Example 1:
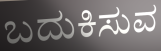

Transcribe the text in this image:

ಬದುಕಿಸುವ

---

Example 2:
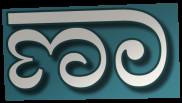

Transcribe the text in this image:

ಣಾ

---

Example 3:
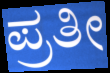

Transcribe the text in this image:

ಪ್ರತೀ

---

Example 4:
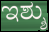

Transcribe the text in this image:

ಇಶ್ಶು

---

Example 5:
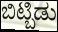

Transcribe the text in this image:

ಬಿಟ್ಬಿಡು